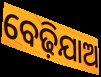
ବେଢ଼ିଯାଅ